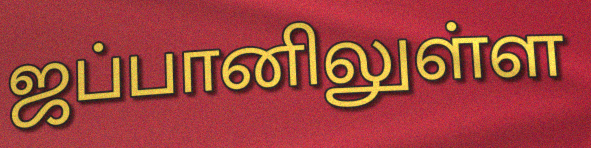
ஜப்பானிலுள்ள